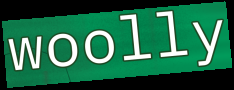
woolly